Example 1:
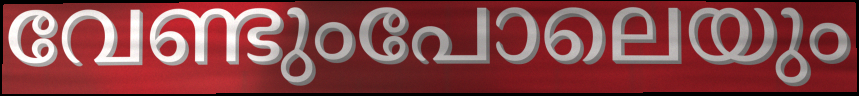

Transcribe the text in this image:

വേണ്ടുംപോലെയും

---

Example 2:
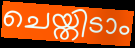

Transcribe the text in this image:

ചെയ്തിടാം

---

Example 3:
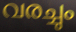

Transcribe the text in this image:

വരച്ചും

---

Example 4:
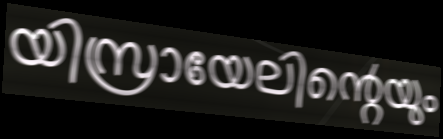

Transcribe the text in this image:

യിസ്രായേലിന്റെയും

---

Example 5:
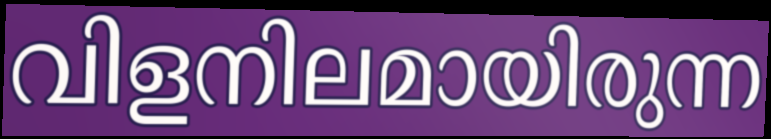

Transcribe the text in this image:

വിളനിലമായിരുന്ന